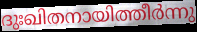
ദുഃഖിതനായിത്തീർന്നു